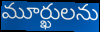
మూర్ఖులను